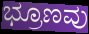
ಭ್ರೂಣವು